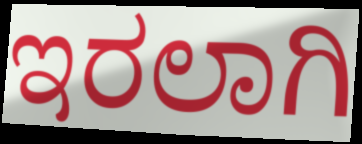
ಇರಲಾಗಿ